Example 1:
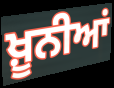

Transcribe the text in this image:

ਖ਼ੂਨੀਆਂ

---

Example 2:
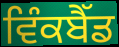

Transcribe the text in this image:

ਵਿੰਕਬੈੱਡ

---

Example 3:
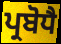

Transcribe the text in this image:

ਪ੍ਰਬੋਧੈ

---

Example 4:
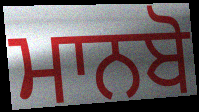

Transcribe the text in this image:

ਮਾਨਬੋ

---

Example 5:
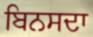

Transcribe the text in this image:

ਬਿਨਸਦਾ